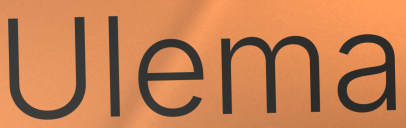
Ulema